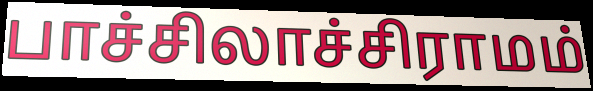
பாச்சிலாச்சிராமம்